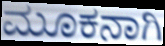
ಮೂಕನಾಗಿ